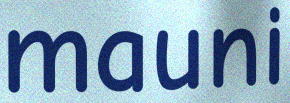
mauni